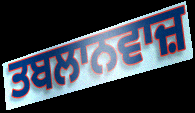
ਤਬਲਾਨਵਾਜ਼